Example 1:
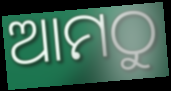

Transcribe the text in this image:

ଆମଠୁ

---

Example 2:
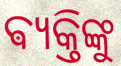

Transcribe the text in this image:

ଵ୍ୟକ୍ତିଙ୍କୁ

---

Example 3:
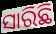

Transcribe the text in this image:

ସାରିଛି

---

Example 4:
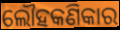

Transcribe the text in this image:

ଲୌହକଣିକାର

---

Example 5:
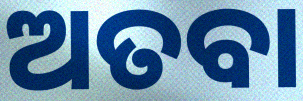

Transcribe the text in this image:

ଅତବା